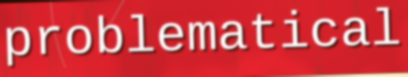
problematical